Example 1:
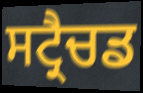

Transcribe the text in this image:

ਸਟ੍ਰੈਚਡ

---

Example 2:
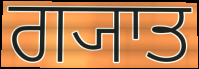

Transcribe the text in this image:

ਗ੍ਯਾਤ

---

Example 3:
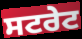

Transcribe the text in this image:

ਸਟਰੇਟ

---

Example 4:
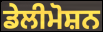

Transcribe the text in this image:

ਡੇਲੀਮੋਸ਼ਨ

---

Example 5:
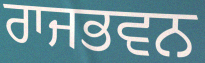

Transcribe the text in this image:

ਰਾਜਭਵਨ